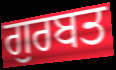
ਗੁਰਬਤ